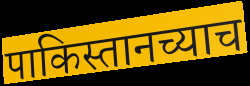
पाकिस्तानच्याच